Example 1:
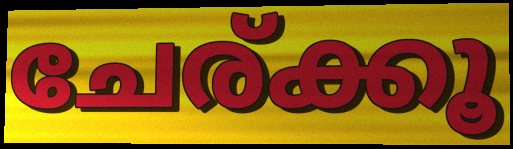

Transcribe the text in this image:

ചേര്ക്കൂ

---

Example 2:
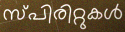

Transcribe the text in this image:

സ്പിരിറ്റുകൾ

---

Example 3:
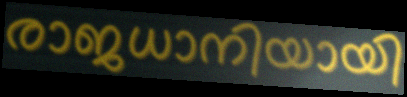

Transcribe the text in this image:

രാജധാനിയായി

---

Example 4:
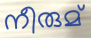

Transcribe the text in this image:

നീരുമ്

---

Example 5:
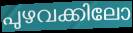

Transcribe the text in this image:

പുഴവക്കിലോ